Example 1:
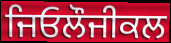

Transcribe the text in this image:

ਜਿਓਲੌਜੀਕਲ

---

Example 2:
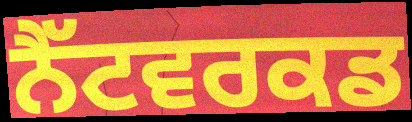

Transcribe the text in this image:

ਨੈੱਟਵਰਕਡ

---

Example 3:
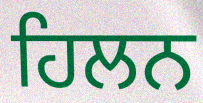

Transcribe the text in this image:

ਹਿਲਨ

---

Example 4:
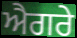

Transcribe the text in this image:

ਐਗਰੇ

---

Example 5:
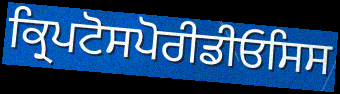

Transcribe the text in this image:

ਕ੍ਰਿਪਟੋਸਪੋਰੀਡੀਓਸਿਸ